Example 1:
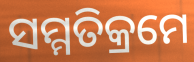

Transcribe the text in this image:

ସମ୍ମତିକ୍ରମେ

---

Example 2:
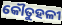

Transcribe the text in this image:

କୌତୁହଳୀ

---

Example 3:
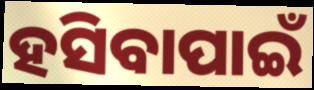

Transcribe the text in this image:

ହସିବାପାଇଁ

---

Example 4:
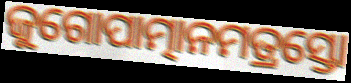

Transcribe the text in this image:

ଜୁଗୋପାତ୍ମାନମତ୍ରସ୍ତୋ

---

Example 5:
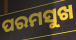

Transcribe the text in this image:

ପରମସୁଖ